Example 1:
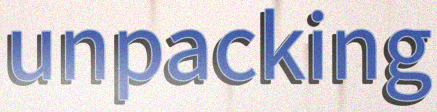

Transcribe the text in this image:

unpacking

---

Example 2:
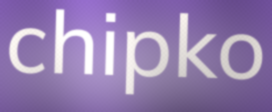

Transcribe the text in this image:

chipko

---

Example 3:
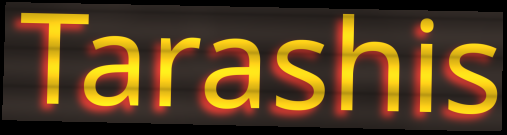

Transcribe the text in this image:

Tarashis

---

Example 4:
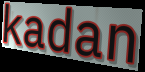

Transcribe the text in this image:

kadan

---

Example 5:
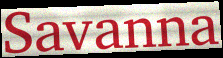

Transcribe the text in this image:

Savanna